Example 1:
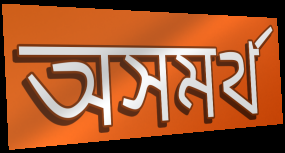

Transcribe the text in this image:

অসমৰ্থ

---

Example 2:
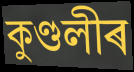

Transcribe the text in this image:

কুণ্ডলীৰ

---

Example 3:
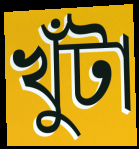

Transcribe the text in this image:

খুঁটা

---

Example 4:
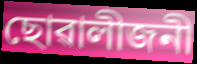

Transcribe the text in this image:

ছোৱালীজনী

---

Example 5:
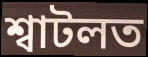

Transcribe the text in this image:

শ্বাটলত